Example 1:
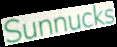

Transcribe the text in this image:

Sunnucks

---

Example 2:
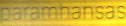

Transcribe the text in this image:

paramhansas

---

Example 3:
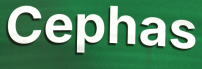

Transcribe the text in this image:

Cephas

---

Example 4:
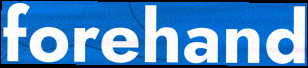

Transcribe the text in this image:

forehand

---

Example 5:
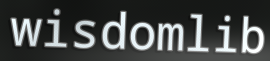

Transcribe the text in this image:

wisdomlib